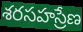
శరసహస్రేణ